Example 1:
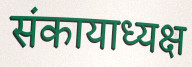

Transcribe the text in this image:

संकायाध्यक्ष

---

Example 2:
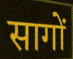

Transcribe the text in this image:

सागों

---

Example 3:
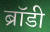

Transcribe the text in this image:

ब्रॉडी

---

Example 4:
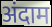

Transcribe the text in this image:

अंदाम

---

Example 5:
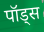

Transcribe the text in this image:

पॉड्स